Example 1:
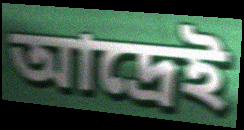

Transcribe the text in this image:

আদ্রেই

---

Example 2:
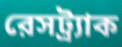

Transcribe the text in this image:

রেসট্র্যাক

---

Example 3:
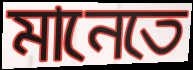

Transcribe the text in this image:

মানেতে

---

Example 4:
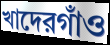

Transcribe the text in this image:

খাদেরগাঁও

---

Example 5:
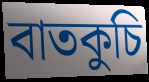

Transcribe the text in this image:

বাতকুচি